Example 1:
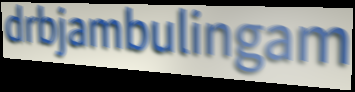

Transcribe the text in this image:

drbjambulingam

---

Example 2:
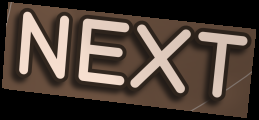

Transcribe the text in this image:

NEXT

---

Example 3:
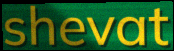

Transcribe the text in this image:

shevat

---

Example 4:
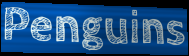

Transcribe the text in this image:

Penguins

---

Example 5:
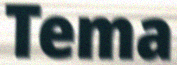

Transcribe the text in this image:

Tema